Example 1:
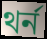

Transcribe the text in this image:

থর্ন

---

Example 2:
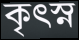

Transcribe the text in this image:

কৃৎস্ন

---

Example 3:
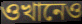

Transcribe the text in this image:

ওখানেও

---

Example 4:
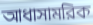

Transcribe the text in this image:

আধাসামরিক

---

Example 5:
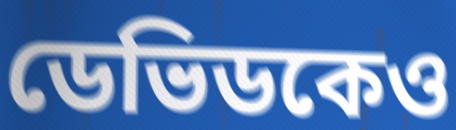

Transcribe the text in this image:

ডেভিডকেও